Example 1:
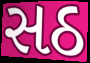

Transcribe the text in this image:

સઠ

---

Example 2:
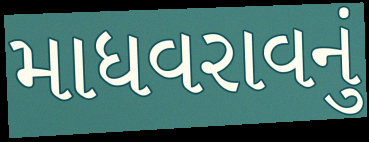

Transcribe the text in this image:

માધવરાવનું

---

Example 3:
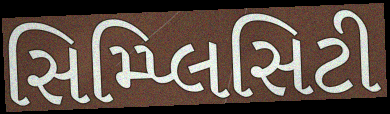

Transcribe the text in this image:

સિમ્પ્લિસિટી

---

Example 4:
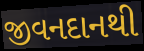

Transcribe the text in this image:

જીવનદાનથી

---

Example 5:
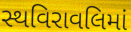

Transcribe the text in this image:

સ્થવિરાવલિમાં